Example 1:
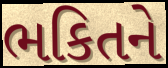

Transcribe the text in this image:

ભકિતને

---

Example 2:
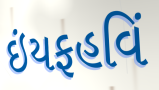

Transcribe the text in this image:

ઇંયફહવિં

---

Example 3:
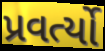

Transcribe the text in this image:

પ્રવર્ત્યો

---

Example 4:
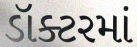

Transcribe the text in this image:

ડૉક્ટરમાં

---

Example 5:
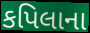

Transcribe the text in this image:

કપિલાના